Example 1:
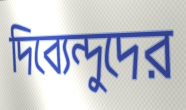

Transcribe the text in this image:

দিব্যেন্দুদের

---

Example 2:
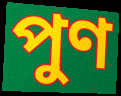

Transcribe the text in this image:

পুণ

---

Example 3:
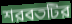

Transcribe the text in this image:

শরবতটির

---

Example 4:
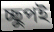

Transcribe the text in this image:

চ্ছুপই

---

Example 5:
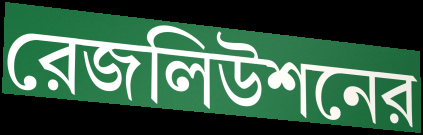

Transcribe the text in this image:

রেজলিউশনের